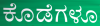
ಕೊಡೆಗಳೂ